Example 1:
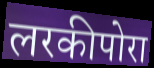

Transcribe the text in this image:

लरकीपोरा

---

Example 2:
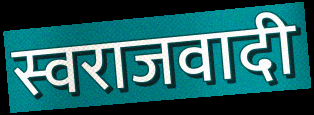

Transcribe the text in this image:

स्वराजवादी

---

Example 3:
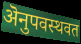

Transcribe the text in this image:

ऄनुपवस्थवत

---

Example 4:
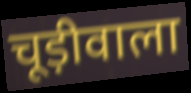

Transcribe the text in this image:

चूड़ीवाला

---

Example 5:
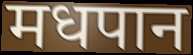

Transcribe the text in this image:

मधपान